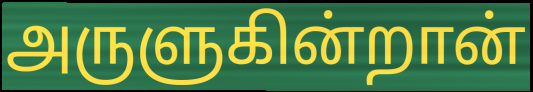
அருளுகின்றான்